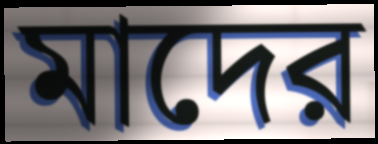
মাদের